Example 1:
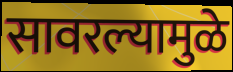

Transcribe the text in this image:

सावरल्यामुळे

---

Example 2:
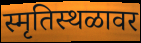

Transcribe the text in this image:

स्मृतिस्थळावर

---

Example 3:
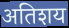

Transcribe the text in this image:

अतिशय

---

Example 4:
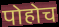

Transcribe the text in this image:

पोहोच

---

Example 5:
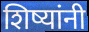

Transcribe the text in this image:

शिष्यांनी